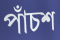
পাঁচশ